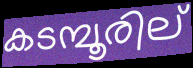
കടമ്പൂരില്